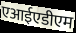
एआईएडीएम